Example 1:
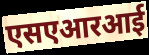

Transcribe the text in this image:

एसएआरआई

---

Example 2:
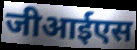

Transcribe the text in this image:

जीआईएस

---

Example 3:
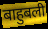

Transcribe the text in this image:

बाहुबली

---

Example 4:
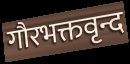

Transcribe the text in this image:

गौरभक्तवृन्द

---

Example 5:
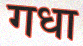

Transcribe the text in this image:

गधा